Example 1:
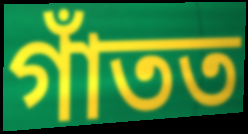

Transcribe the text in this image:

গাঁতত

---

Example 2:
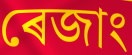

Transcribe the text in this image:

ৰেজাং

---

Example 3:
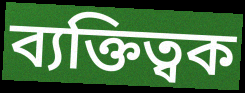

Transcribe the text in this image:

ব্যক্তিত্বক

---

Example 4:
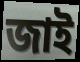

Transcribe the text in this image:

জাই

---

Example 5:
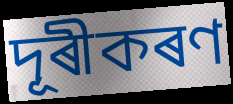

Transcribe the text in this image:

দূৰীকৰণ